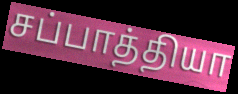
சப்பாத்தியா